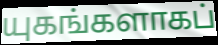
யுகங்களாகப்